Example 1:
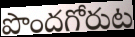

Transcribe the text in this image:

పొందగోరుట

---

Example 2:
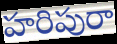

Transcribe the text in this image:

హరిపురా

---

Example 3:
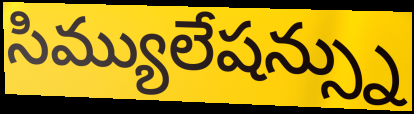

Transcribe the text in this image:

సిమ్యులేషన్స్ను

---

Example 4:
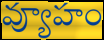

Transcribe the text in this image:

వ్యూహం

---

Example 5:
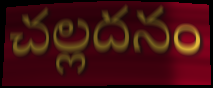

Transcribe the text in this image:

చల్లదనం